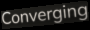
Converging